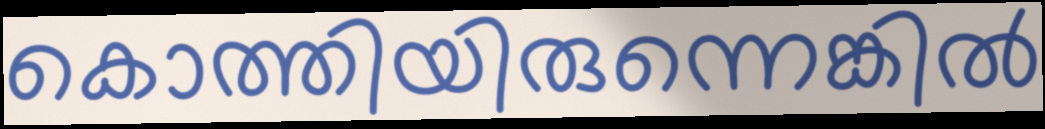
കൊത്തിയിരുന്നെങ്കിൽ